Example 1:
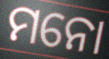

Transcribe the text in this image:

ମନୋ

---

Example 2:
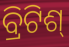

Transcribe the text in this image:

ବ୍ରିଟିଶ୍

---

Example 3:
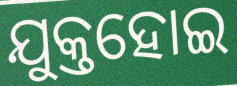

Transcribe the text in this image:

ଯୁକ୍ତହୋଇ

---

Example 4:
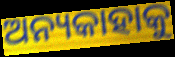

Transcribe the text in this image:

ଅନ୍ୟକାହାକୁ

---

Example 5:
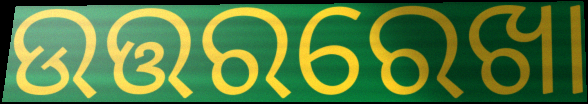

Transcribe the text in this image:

ଉତ୍ତରରେଖା